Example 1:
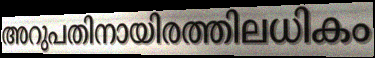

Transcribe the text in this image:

അറുപതിനായിരത്തിലധികം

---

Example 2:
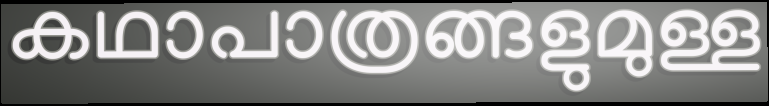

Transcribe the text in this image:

കഥാപാത്രങ്ങളുമുള്ള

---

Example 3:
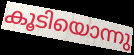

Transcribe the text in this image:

കൂടിയൊന്നു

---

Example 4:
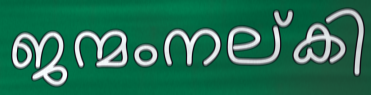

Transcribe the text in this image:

ജന്മംനല്കി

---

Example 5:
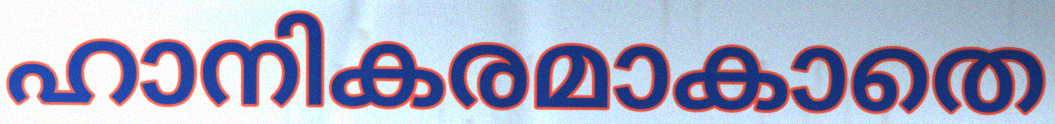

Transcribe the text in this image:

ഹാനികരമാകാതെ